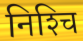
निश्चि